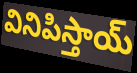
వినిపిస్తాయ్